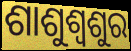
ଶାଶୁଶ୍ୱଶୁର